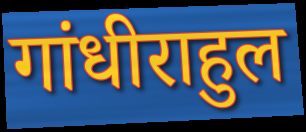
गांधीराहुल